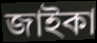
জাইকা